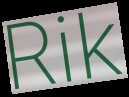
Rik